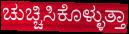
ಚುಚ್ಚಿಸಿಕೊಳ್ಳುತ್ತಾ